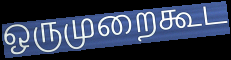
ஒருமுறைகூட